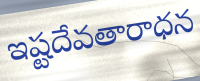
ఇష్టదేవతారాధన